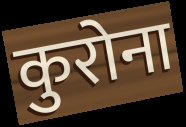
कुरोना